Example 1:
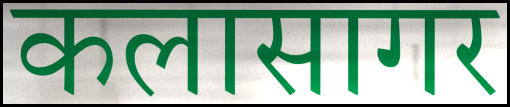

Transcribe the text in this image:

कलासागर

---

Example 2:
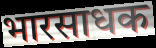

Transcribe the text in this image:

भारसाधक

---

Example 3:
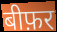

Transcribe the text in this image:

बीफ़र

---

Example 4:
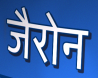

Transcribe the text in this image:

जैरोन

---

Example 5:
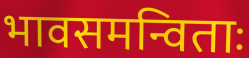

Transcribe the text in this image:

भावसमन्विताः